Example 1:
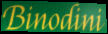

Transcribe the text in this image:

Binodini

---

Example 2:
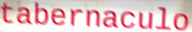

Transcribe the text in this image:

tabernaculo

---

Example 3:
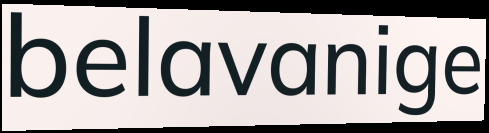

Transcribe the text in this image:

belavanige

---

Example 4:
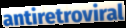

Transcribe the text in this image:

antiretroviral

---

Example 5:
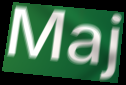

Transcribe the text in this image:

Maj